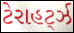
ટેરાહર્ટ્ઝ